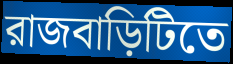
রাজবাড়িটিতে